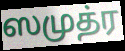
ஸமுத்ர